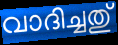
വാദിച്ചതു്